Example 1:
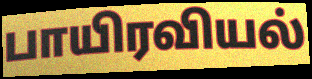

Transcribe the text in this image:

பாயிரவியல்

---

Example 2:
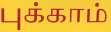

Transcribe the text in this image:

புக்காம்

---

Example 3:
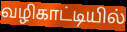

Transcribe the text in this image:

வழிகாட்டியில்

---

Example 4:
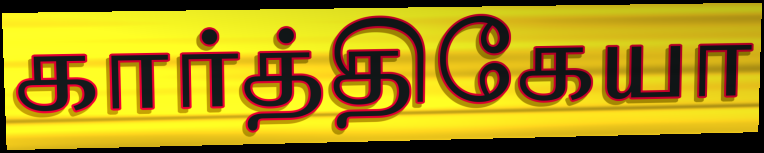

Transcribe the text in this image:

கார்த்திகேயா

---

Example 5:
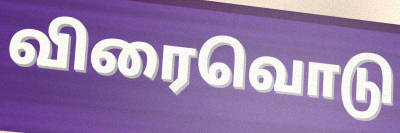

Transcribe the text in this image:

விரைவொடு